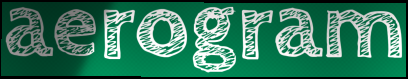
aerogram